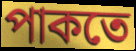
পাকতে